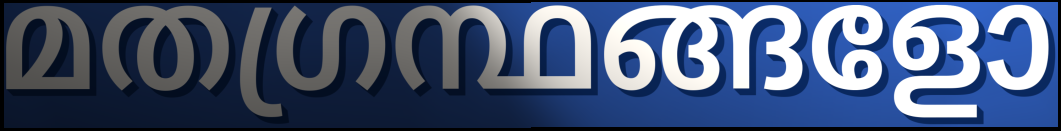
മതഗ്രന്ഥങ്ങളോ